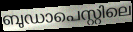
ബുഡാപെസ്റ്റിലെ